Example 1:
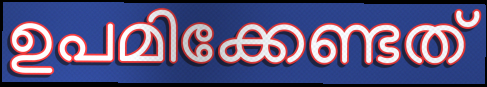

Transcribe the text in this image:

ഉപമിക്കേണ്ടത്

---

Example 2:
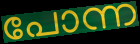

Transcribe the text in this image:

പോന്ന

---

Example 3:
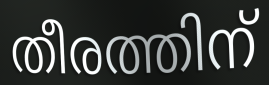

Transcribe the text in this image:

തീരത്തിന്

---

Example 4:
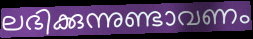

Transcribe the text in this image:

ലഭിക്കുന്നുണ്ടാവണം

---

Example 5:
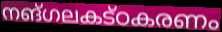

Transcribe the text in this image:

നങ്ഗലകട്ഠകരണം